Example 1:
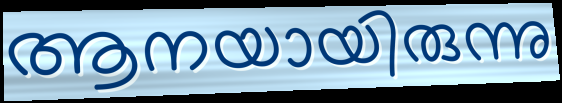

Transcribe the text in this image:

ആനയായിരുന്നു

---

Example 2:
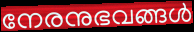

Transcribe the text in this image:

നേരനുഭവങ്ങൾ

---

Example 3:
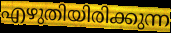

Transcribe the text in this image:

എഴുതിയിരിക്കുന്ന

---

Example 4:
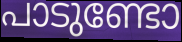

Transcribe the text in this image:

പാടുണ്ടോ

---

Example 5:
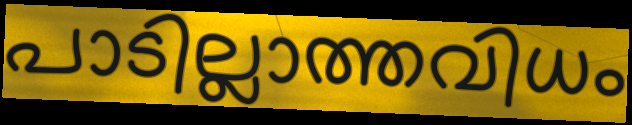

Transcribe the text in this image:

പാടില്ലാത്തവിധം